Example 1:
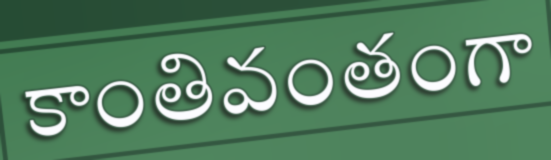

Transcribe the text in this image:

కాంతివంతంగా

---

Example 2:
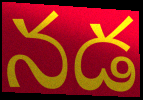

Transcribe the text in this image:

నడ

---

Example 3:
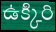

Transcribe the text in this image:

ఉక్కిరి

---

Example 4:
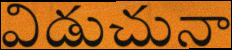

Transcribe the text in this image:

విడుచునా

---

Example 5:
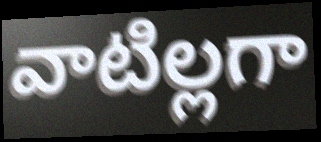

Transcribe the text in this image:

వాటిల్లగా